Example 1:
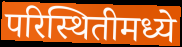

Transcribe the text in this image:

परिस्थितीमध्ये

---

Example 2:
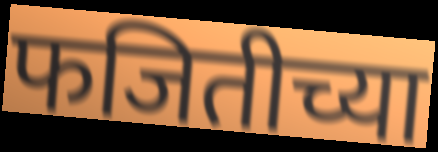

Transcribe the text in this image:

फजितीच्या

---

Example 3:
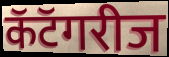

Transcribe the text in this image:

कॅटॅगरीज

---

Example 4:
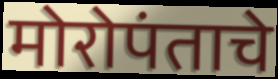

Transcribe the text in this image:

मोरोपंताचे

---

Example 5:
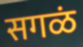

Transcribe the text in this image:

सगळं